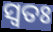
ସ୍ଵତଃ